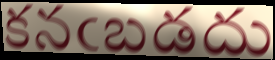
కనఁబడదు